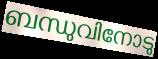
ബന്ധുവിനോടു